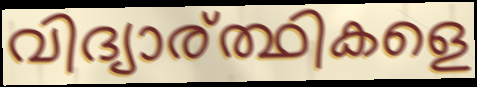
വിദ്യാര്ത്ഥികളെ